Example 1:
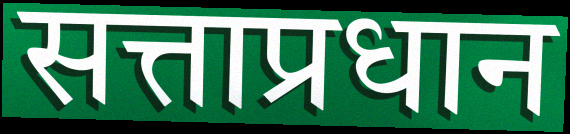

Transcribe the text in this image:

सत्ताप्रधान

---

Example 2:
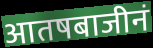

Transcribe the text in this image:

आतषबाजीनं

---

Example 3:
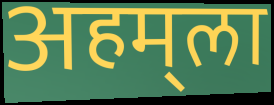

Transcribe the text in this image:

अहम्‌ला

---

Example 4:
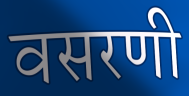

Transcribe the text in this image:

वसरणी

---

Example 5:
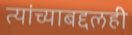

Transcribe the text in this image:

त्यांच्याबद्दलही